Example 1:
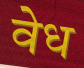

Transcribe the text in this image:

वेध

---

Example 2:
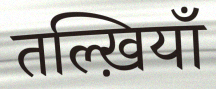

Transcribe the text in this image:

तल्ख़ियाँ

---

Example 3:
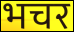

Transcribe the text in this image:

भचर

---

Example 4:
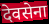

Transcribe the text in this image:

देवसेना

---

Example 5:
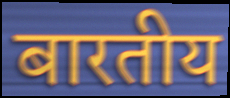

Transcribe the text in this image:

बारतीय